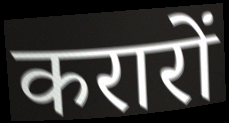
करारों